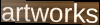
artworks